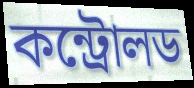
কন্ট্রোলড